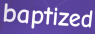
baptized